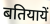
बतियायें